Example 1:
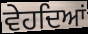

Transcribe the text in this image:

ਵੇਹਦਿਆਂ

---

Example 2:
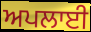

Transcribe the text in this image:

ਅਪਲਾਈ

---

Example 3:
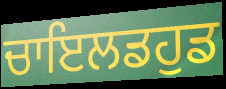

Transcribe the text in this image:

ਚਾਇਲਡਹੁਡ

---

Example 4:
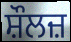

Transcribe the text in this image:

ਸ਼ੌਲਜ਼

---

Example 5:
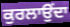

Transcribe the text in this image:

ਕੁਰਲਾਉਂਦਾ